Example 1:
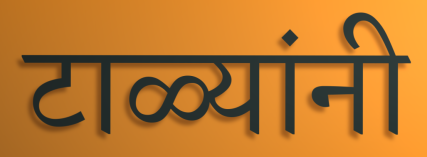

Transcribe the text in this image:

टाळ्यांनी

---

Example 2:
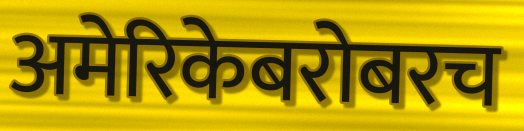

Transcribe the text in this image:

अमेरिकेबरोबरच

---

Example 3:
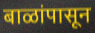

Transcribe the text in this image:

बाळांपासून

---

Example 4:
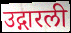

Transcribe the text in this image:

उद्गारली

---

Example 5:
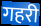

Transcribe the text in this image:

गहरी